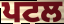
ਪਟਲ